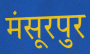
मंसूरपुर